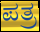
ಪತ್ರ